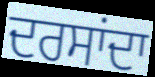
ਦਰਸਾਂਦਾ